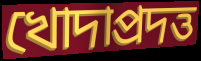
খোদাপ্রদত্ত